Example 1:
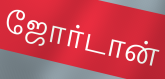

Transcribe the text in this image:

ஜோர்டான்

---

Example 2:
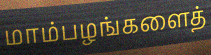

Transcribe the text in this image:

மாம்பழங்களைத்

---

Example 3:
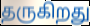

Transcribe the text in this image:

தருகிறது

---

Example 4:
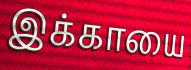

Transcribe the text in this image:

இக்காயை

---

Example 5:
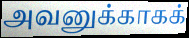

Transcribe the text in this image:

அவனுக்காகக்